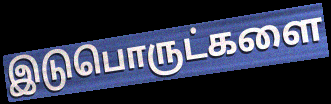
இடுபொருட்களை